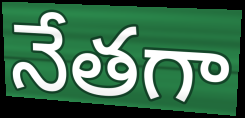
నేతగా